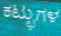
ಕಟ್ಟುಗಳ